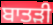
ਬਾਤੜੀ